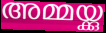
അമ്മയ്ക്കു